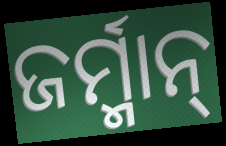
ଜର୍ମ୍ମାନ୍